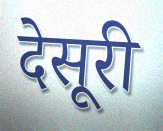
देसूरी